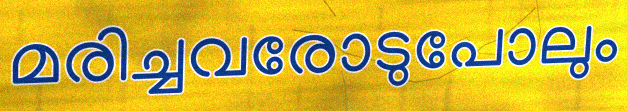
മരിച്ചവരോടുപോലും